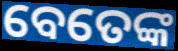
ବେତେଙ୍କ